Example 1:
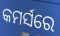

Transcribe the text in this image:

କମର୍ସରେ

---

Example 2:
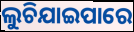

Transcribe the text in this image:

ଲୁଚିଯାଇପାରେ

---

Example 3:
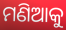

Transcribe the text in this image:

ମଣିଆକୁ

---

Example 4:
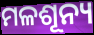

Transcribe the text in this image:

ମଳଶୂନ୍ୟ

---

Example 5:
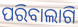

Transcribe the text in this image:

ପରିବାଲାଗି